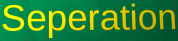
Seperation